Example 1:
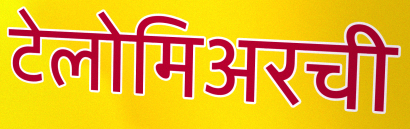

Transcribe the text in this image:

टेलोमिअरची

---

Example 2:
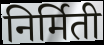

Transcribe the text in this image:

निर्मिती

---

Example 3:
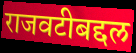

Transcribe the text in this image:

राजवटीबद्दल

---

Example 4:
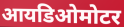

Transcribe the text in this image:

आयडिओमोटर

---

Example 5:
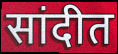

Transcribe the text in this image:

सांदीत